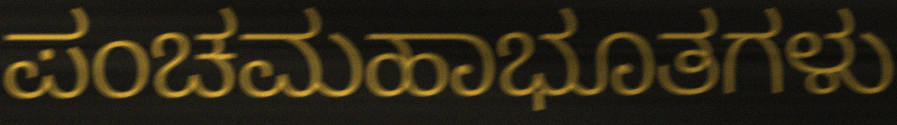
ಪಂಚಮಹಾಭೂತಗಳು